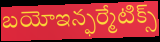
బయోఇన్ఫర్మేటిక్స్